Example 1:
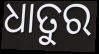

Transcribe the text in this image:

ଧାତୁର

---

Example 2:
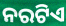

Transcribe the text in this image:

ନରଟିଏ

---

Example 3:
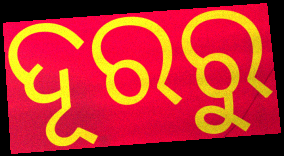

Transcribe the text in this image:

ଦୂରରୁ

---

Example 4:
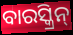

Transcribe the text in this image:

ବାରସ୍କ୍ରିନ୍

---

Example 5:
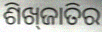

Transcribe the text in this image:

ଶିଖ୍‌ଜାତିର